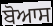
ਬੋਆਸ